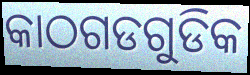
କାଠଗଡଗୁଡିକ